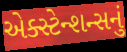
એક્સ્ટેન્શન્સનું